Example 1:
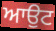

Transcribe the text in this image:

ਆਉਟ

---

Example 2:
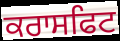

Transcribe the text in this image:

ਕਰਾਸਫਿਟ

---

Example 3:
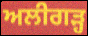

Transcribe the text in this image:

ਅਲੀਗੜ੍ਹ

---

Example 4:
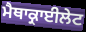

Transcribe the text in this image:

ਮੈਥਾਕ੍ਰਾਈਲੇਟ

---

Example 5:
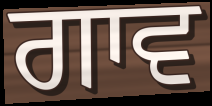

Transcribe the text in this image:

ਗਾਵ